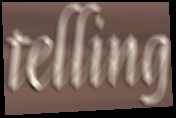
telling